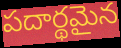
పదార్థమైన